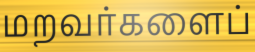
மறவர்களைப்